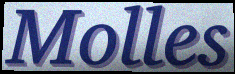
Molles